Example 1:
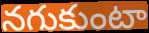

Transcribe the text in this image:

నగుకుంటా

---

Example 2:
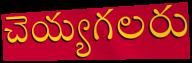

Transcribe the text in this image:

చెయ్యగలరు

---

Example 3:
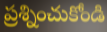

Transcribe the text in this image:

ప్రశ్నించుకోండి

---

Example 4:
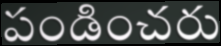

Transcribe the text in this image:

పండించరు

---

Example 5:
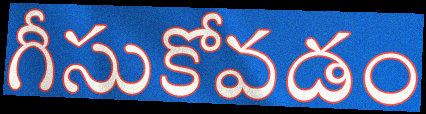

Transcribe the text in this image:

గీసుకోవడం